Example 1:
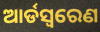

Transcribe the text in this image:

ଆର୍ଡସ୍ଵରେଣ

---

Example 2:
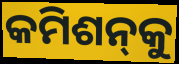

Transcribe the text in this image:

କମିଶନ୍‌କୁ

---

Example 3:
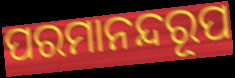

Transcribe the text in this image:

ପରମାନନ୍ଦରୂପ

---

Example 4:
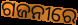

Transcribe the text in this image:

ଗଜନୀରେ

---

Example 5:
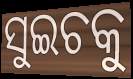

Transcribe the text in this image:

ସୁଇଚକୁ